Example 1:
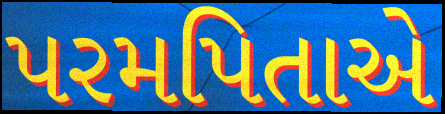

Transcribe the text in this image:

પરમપિતાએ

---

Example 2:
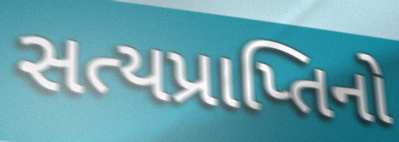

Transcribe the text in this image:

સત્યપ્રાપ્તિનો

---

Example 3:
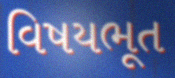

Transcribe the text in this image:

વિષયભૂત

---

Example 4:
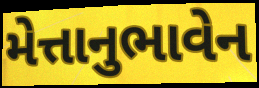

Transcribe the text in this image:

મેત્તાનુભાવેન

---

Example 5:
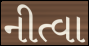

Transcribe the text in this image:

નીત્વા